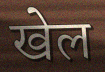
खेल